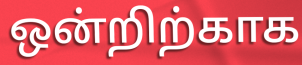
ஒன்றிற்காக